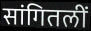
सांगितलीं